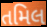
તમિલ